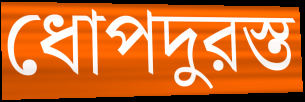
ধোপদুরস্ত